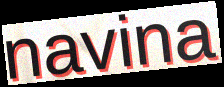
navina